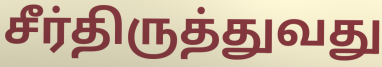
சீர்திருத்துவது